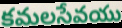
కమలసేవయు